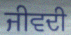
ਜੀਵਦੀ